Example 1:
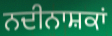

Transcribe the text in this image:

ਨਦੀਨਾਸ਼ਕਾਂ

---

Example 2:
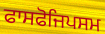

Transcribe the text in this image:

ਫਾਸਫੋਜਿਪਸਮ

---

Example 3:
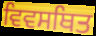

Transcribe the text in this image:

ਵਿਵਸਥਿਤ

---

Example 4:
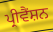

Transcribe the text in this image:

ਪ੍ਰੀਵੈਂਸ਼ਨ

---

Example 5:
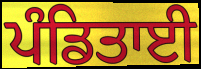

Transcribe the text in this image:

ਪੰਡਿਤਾਈ